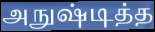
அநுஷ்டித்த